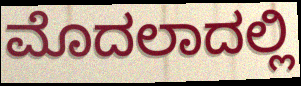
ಮೊದಲಾದಲ್ಲಿ